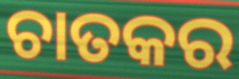
ଚାତକର